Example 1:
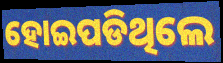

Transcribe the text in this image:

ହୋଇପଡିଥିଲେ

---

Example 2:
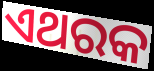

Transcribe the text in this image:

ଏଥରକ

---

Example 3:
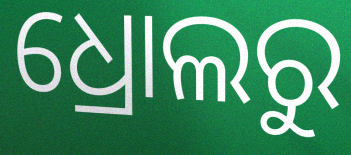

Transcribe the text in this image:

ଧ୍ରୋଲରୁ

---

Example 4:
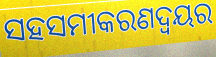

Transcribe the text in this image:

ସହସମୀକରଣଦ୍ୱୟର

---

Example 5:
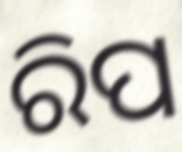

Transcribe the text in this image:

ରିପ